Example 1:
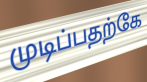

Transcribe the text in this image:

முடிப்பதற்கே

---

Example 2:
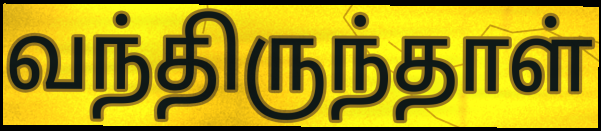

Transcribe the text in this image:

வந்திருந்தாள்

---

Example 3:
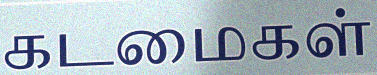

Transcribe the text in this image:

கடமைகள்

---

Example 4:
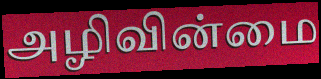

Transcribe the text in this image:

அழிவின்மை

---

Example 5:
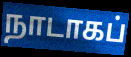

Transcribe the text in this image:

நாடாகப்